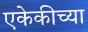
एकेकीच्या